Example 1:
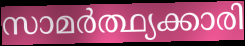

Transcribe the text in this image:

സാമർത്ഥ്യക്കാരി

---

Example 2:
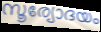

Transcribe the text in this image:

സൂര്യോദയം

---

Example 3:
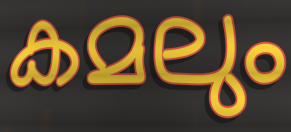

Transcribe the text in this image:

കമലും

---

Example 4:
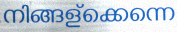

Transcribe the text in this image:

നിങ്ങള്ക്കെന്നെ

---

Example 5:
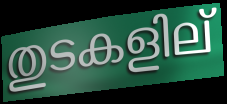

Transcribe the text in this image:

തുടകളില്